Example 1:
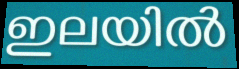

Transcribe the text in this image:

ഇലയിൽ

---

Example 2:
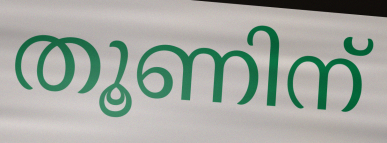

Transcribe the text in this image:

തൂണിന്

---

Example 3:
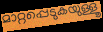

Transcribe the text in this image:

മാറ്റപ്പെടുകയുള്ളൂ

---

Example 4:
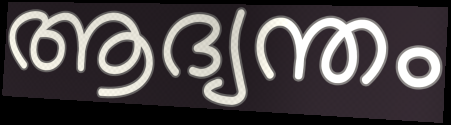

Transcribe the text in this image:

ആദ്യന്തം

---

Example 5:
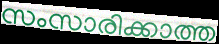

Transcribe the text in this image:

സംസാരിക്കാത്ത